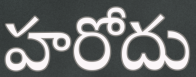
హరోదు